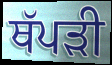
ਥੱਪੜੀ